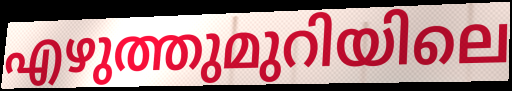
എഴുത്തുമുറിയിലെ